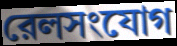
রেলসংযোগ